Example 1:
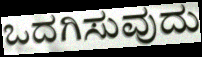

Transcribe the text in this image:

ಒದಗಿಸುವುದು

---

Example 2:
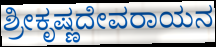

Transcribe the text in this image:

ಶ್ರೀಕೃಷ್ಣದೇವರಾಯನ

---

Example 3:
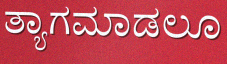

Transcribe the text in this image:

ತ್ಯಾಗಮಾಡಲೂ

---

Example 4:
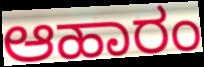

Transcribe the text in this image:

ಆಹಾರಂ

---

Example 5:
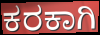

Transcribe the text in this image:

ಕರಕಾಗಿ